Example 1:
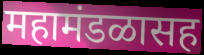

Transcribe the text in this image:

महामंडळासह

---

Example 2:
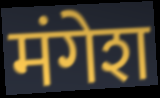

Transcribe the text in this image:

मंगेश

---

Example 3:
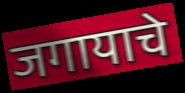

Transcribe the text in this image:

जगायाचे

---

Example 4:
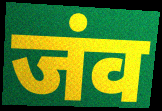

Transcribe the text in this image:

जंव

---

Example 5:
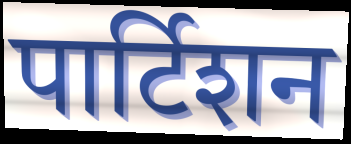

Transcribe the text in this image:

पार्टिशन